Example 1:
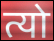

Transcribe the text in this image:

त्यो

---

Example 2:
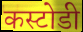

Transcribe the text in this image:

कस्टोडी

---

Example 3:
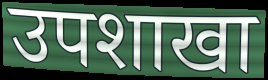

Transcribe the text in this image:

उपशाखा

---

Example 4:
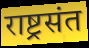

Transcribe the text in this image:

राष्ट्रसंत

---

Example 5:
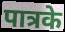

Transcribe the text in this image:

पात्रके